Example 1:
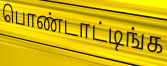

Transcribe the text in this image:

பொண்டாட்டிங்க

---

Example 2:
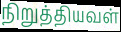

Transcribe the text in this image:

நிறுத்தியவள்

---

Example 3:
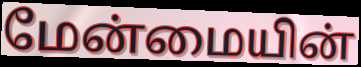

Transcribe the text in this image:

மேன்மையின்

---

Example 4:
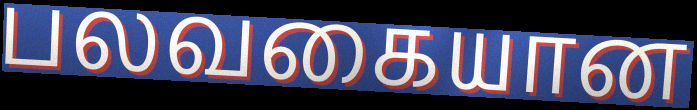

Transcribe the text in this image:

பலவகையான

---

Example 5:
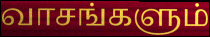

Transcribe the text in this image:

வாசங்களும்